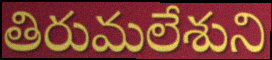
తిరుమలేశుని